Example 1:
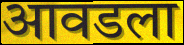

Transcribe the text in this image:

आवडला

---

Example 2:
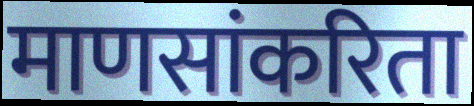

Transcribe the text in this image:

माणसांकरिता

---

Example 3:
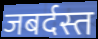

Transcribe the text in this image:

जबर्दस्त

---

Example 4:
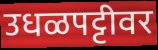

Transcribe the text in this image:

उधळपट्टीवर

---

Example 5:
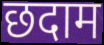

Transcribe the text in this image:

छदाम